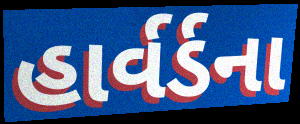
હાર્વર્ડના